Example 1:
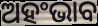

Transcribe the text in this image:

ଅହଂଭାବ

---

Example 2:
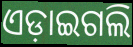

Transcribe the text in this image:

ଏଡ଼ାଇଗଲି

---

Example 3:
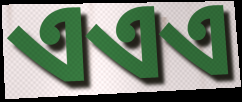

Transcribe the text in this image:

ଏଏଏ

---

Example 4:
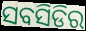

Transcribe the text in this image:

ସବସିଡିର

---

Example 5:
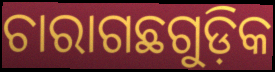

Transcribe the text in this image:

ଚାରାଗଛଗୁଡ଼ିକ